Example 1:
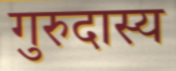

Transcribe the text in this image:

गुरुदास्य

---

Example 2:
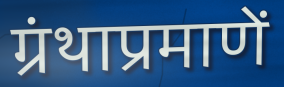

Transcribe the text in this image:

ग्रंथाप्रमाणें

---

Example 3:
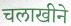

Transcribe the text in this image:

चलाखीने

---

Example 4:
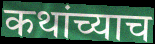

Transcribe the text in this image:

कथांच्याच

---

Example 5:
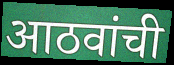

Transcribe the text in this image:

आठवांची